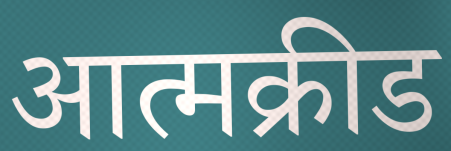
आत्मक्रीड